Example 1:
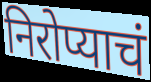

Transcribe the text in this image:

निरोप्याचं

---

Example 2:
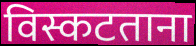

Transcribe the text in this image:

विस्कटताना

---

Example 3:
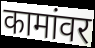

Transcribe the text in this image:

कामांवर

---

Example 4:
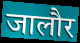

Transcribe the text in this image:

जालौर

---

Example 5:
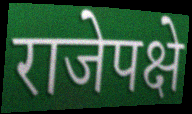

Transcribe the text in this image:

राजेपक्षे